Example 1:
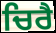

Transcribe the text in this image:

ਚਿਰੈ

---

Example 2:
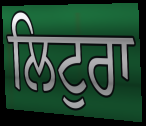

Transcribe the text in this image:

ਲਿਟੁਰਾ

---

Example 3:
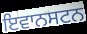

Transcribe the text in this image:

ਇਵਾਨਸਟਨ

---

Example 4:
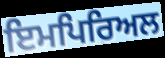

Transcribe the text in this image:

ਇਮਪਿਰਿਅਲ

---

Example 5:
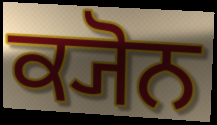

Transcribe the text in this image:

ਕ੍ਯੋਨ